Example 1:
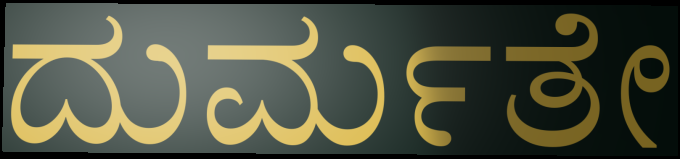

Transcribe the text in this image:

ದುರ್ಮತೇ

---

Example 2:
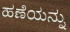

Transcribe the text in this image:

ಹಣೆಯನ್ನು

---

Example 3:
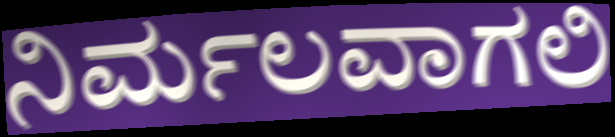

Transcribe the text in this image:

ನಿರ್ಮಲವಾಗಲಿ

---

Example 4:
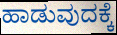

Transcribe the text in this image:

ಹಾಡುವುದಕ್ಕೆ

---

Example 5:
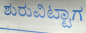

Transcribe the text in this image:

ಶುರುವಿಟ್ಟಾಗ